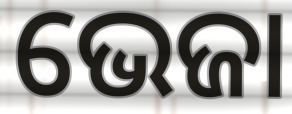
ଭେଜା